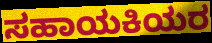
ಸಹಾಯಕಿಯರ